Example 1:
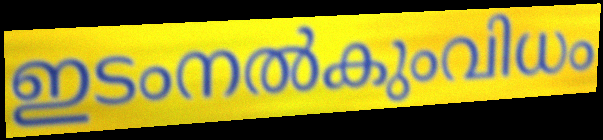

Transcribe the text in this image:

ഇടംനൽകുംവിധം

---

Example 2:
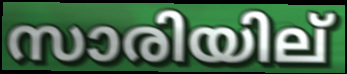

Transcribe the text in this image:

സാരിയില്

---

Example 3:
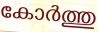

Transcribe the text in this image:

കോർത്തു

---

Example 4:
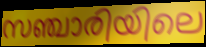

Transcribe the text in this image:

സഞ്ചാരിയിലെ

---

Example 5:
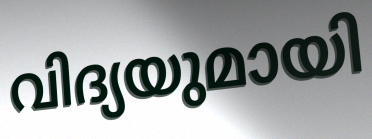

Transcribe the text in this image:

വിദ്യയുമായി